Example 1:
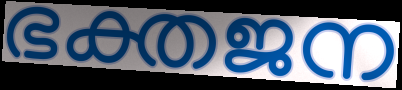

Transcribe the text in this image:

ഭക്തജന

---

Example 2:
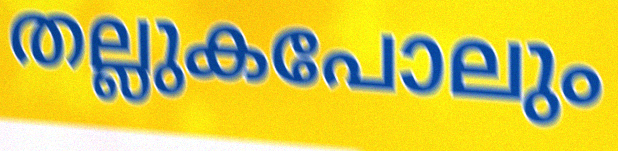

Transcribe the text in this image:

തല്ലുകപോലും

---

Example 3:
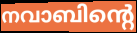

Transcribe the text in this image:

നവാബിന്റെ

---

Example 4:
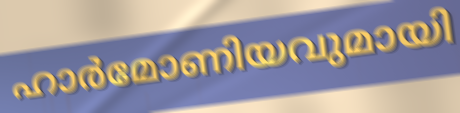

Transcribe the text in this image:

ഹാർമോണിയവുമായി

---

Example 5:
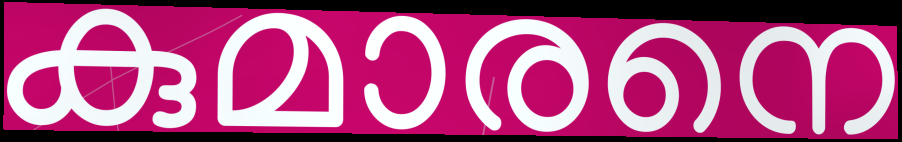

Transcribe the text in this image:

കുമാരനെ